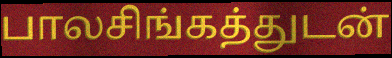
பாலசிங்கத்துடன்